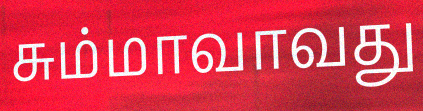
சும்மாவாவது